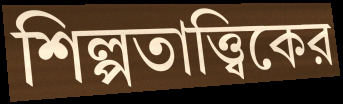
শিল্পতাত্ত্বিকের